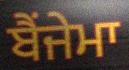
ਬੈਂਜੇਮਾ